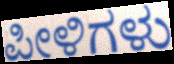
ಪೀಳಿಗಳು